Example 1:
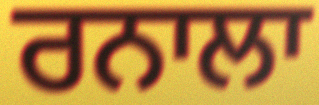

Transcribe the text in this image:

ਰਨਾਲਾ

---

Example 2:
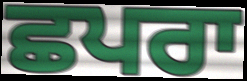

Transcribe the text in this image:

ਛਪਰਾ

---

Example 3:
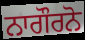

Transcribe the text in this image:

ਨਾਗੌਰਨੋ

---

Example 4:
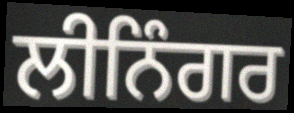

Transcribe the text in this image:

ਲੀਨਿੰਗਰ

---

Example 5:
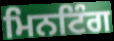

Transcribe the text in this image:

ਮਿਨਟਿੰਗ